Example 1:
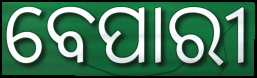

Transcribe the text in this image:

ବେପାରୀ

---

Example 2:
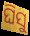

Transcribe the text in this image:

ଘିସୁ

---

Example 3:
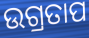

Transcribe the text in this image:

ଉଗ୍ରତାପ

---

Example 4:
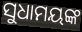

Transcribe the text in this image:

ସୁଧାମୟଙ୍କ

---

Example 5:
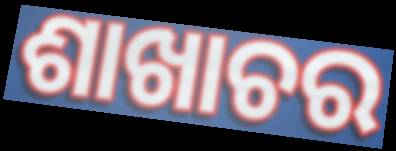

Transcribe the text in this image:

ଶାଖାଚର